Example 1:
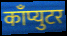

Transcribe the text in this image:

काँप्युटर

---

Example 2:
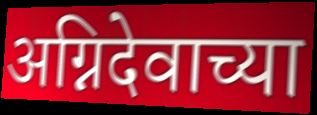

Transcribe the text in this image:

अग्निदेवाच्या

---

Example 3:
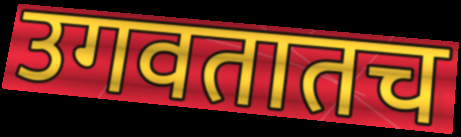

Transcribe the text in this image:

उगवतातच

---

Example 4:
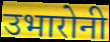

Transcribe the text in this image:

उभारोनी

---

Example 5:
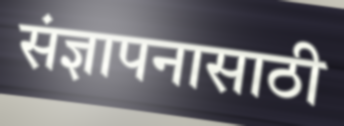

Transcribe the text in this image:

संज्ञापनासाठी